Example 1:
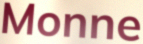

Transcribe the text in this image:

Monne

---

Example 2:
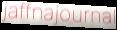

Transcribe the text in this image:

jaffnajournal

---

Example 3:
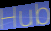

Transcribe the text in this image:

Hub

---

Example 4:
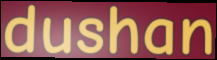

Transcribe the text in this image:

dushan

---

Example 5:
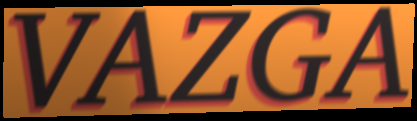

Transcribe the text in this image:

VAZGA